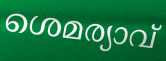
ശെമര്യാവ്